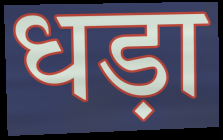
धड़ा